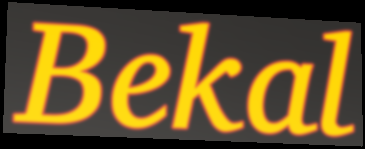
Bekal